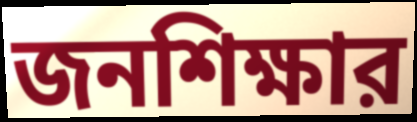
জনশিক্ষার